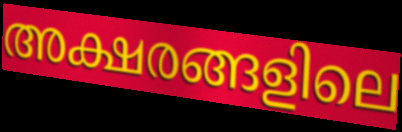
അക്ഷരങ്ങളിലെ